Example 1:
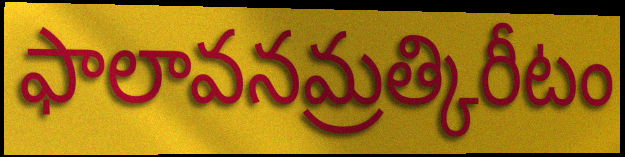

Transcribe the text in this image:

ఫాలావనమ్రత్కిరీటం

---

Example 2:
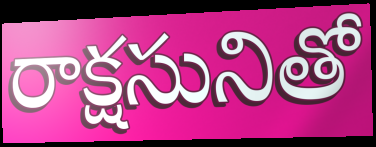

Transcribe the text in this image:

రాక్షసునితో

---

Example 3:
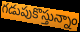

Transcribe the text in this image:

గడుపుకొస్తున్నాం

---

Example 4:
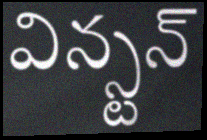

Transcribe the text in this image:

విన్స్టన్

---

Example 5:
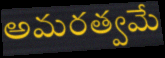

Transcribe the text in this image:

అమరత్వమే